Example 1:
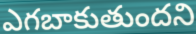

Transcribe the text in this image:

ఎగబాకుతుందని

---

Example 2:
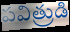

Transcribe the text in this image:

పవిత్రుడి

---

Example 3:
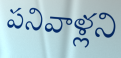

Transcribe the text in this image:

పనివాళ్లని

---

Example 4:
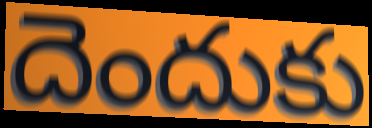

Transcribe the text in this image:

దెందుకు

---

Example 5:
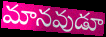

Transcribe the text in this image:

మానవుడూ